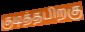
குடித்தபிறகு